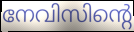
നേവിസിന്റെ